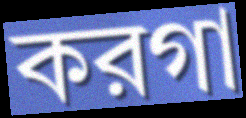
করগা